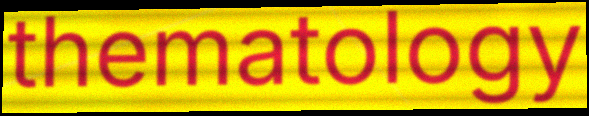
thematology